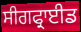
ਸੀਗਫ੍ਰਾਈਡ